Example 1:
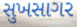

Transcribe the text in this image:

સુખસાગર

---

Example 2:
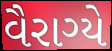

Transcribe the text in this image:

વૈરાગ્યે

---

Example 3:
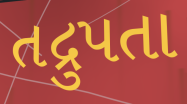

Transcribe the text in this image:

તદ્રુપતા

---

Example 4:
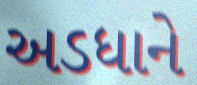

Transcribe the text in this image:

અડધાને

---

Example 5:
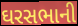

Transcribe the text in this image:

ઘરસભાની